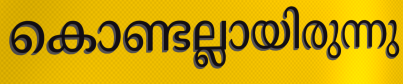
കൊണ്ടല്ലായിരുന്നു